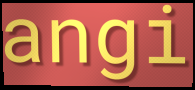
angi